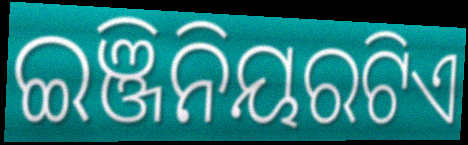
ଇଞ୍ଜିନିୟରଟିଏ